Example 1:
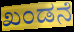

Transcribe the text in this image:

ಖಂಡನೆ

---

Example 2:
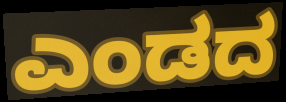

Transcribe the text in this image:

ಎಂಡದ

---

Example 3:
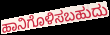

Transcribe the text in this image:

ಹಾನಿಗೊಳಿಸಬಹುದು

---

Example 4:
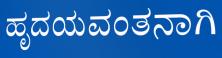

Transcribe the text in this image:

ಹೃದಯವಂತನಾಗಿ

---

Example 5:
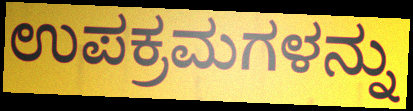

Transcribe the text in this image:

ಉಪಕ್ರಮಗಳನ್ನು